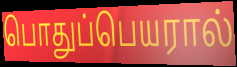
பொதுப்பெயரால்